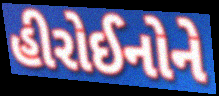
હીરોઈનોને